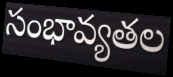
సంభావ్యతల